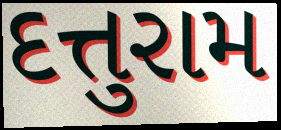
દત્તુરામ